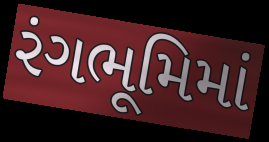
રંગભૂમિમાં